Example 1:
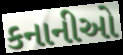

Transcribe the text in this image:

કનાનીઓ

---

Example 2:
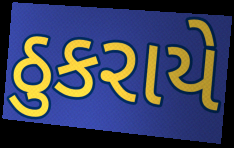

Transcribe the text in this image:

ઠુકરાયે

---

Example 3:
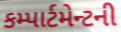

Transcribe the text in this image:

કમ્પાર્ટમેન્ટની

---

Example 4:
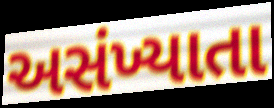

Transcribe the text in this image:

અસંખ્યાતા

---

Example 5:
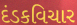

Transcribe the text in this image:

દંડકવિચાર